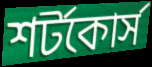
শর্টকোর্স